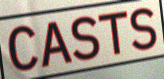
CASTS